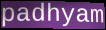
padhyam